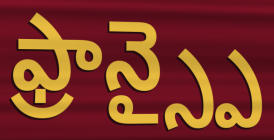
ఫ్రాన్స్పై